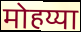
मोहय्या